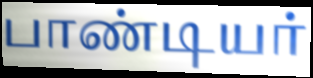
பாண்டியர்